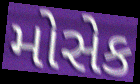
મોસેક